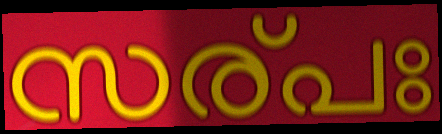
സര്പഃ